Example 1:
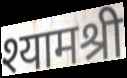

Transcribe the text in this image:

श्यामश्री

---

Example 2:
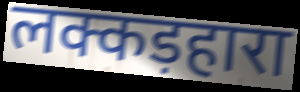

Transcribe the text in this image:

लक्कड़हारा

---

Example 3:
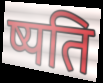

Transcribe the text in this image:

ष्यति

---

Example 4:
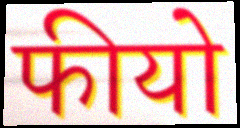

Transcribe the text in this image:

फीयो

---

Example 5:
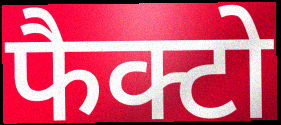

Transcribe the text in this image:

फैक्टो